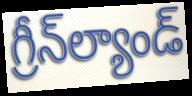
గ్రీన్‌ల్యాండ్